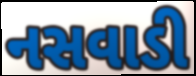
નસવાડી